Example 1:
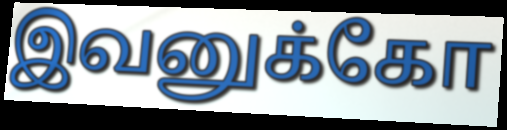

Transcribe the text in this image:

இவனுக்கோ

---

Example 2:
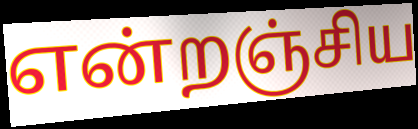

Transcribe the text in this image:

என்றஞ்சிய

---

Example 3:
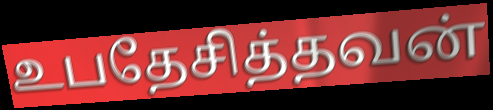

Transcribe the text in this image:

உபதேசித்தவன்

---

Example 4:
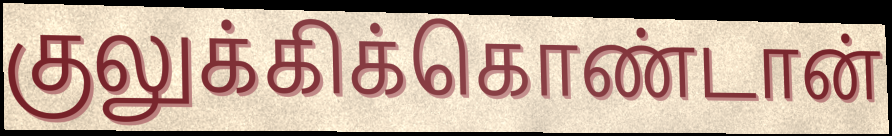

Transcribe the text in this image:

குலுக்கிக்கொண்டான்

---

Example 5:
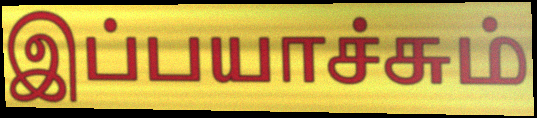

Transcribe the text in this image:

இப்பயாச்சும்